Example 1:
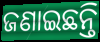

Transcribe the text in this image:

ଜଣାଇଛନ୍ତି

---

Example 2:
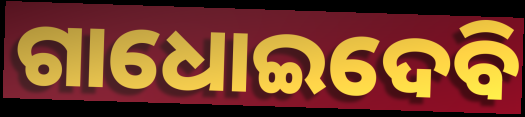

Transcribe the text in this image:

ଗାଧୋଇଦେବି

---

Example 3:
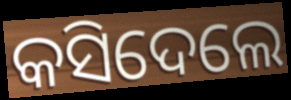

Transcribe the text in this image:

କସିଦେଲେ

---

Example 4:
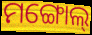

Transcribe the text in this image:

ମଙ୍ଗୋଲ୍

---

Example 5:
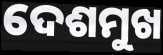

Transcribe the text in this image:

ଦେଶମୁଖ